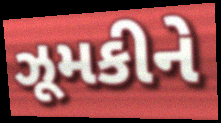
ઝૂમકીને